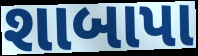
શાબાપા